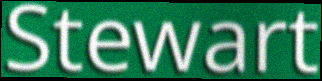
Stewart